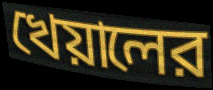
খেয়ালের